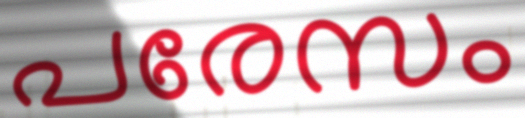
പരേസം